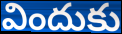
విందుకు